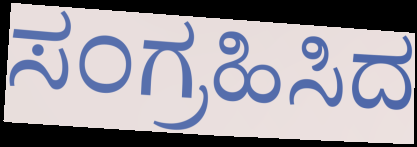
ಸಂಗ್ರಹಿಸಿದ